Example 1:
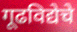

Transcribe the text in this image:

गूढविद्येचे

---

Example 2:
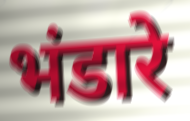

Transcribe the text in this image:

भंडारे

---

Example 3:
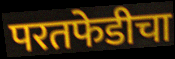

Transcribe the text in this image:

परतफेडीचा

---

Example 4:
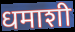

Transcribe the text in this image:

धमाशी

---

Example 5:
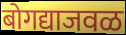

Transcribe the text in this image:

बोगद्याजवळ